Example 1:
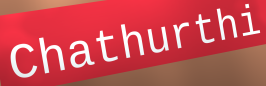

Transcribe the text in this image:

Chathurthi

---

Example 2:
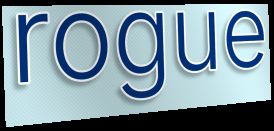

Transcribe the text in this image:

rogue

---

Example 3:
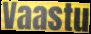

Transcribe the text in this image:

Vaastu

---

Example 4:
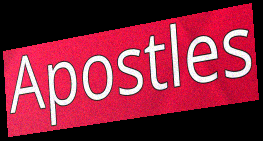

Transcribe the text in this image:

Apostles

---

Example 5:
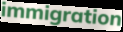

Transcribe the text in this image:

immigration